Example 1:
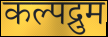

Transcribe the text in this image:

कल्पद्रुम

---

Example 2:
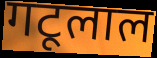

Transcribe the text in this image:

गटूलाल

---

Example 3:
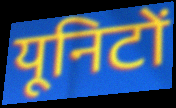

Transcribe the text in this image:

यूनिटों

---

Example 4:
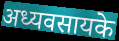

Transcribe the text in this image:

अध्यवसायके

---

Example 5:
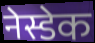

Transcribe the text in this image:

नेस्डेक